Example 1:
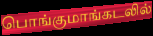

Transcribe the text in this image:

பொங்குமாங்கடலில்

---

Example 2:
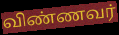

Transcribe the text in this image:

விண்ணவர்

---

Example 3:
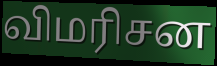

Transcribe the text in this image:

விமரிசன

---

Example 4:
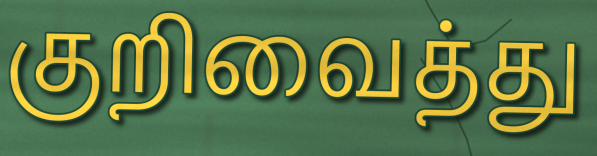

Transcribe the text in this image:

குறிவைத்து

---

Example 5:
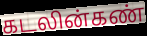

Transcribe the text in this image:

கடலின்கண்